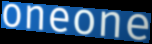
oneone